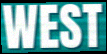
WEST